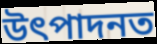
উৎপাদনত